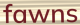
fawns